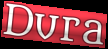
Dura